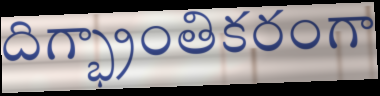
దిగ్భ్రాంతికరంగా